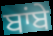
ਬਾਂਬੇ